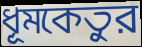
ধূমকেতুর